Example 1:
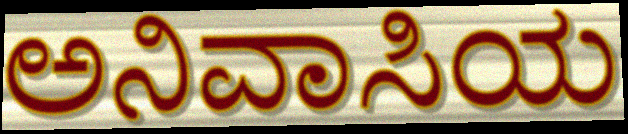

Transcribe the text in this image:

ಅನಿವಾಸಿಯ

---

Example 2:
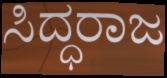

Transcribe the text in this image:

ಸಿದ್ಧರಾಜ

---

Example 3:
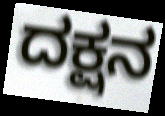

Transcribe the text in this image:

ದಕ್ಷನ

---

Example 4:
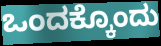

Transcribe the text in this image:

ಒಂದಕ್ಕೊಂದು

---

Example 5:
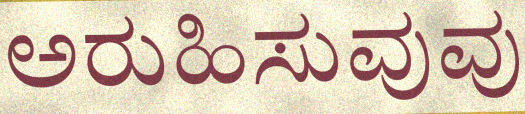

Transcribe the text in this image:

ಅರುಹಿಸುವುವು